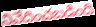
నివేదించబడింది